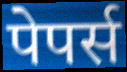
पेपर्स